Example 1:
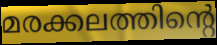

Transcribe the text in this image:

മരക്കലത്തിന്റെ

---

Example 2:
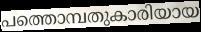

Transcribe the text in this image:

പത്തൊമ്പതുകാരിയായ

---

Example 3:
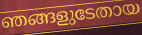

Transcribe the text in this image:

ഞങ്ങളുടേതായ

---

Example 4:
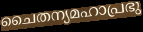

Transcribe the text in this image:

ചൈതന്യമഹാപ്രഭു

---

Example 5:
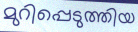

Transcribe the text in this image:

മുറിപ്പെടുത്തിയ